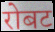
रोबट